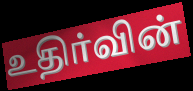
உதிர்வின்